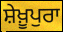
ਸ਼ੇਖ਼ੂਪੁਰਾ